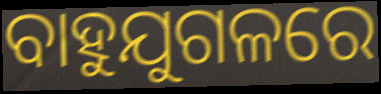
ବାହୁଯୁଗଳରେ